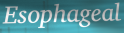
Esophageal